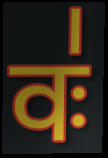
वः॑